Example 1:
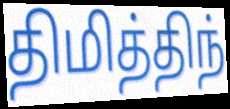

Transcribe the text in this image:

திமித்திந்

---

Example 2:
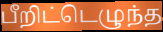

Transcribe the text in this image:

பீறிட்டெழுந்த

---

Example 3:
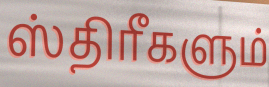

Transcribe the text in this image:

ஸ்திரீகளும்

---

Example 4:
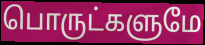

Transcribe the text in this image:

பொருட்களுமே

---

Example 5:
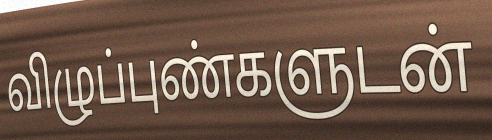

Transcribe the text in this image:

விழுப்புண்களுடன்